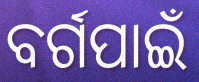
ବର୍ଗପାଇଁ